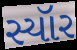
સ્યૉર